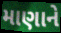
માણાને